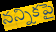
నన్నికపై